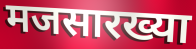
मजसारख्या